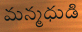
మన్మధుడి